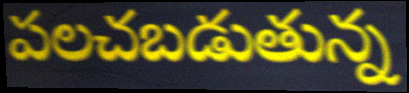
పలచబడుతున్న